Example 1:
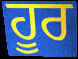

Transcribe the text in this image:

ਹੂਰ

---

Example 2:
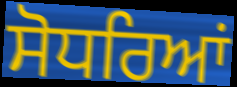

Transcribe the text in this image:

ਸੋਧਰਿਆਂ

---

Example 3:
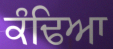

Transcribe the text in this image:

ਕੰਢਿਆ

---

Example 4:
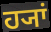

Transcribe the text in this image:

ਹ੍ਯਾਂ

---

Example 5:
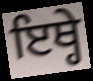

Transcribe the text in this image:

ਇਥ੍ਹੇ